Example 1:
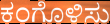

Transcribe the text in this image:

ಕಂಗೊಳಿಸು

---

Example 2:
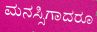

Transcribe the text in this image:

ಮನಸ್ಸಿಗಾದರೂ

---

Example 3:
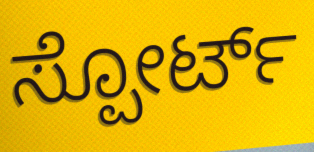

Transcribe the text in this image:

ಸ್ಪೋರ್ಟ್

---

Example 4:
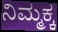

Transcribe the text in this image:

ನಿಮ್ಮಕ್ಕ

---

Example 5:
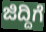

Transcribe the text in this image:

ಜಿದ್ದಿಗೆ